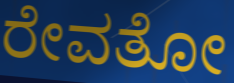
ರೇವತೋ